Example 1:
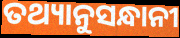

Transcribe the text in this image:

ତଥ୍ୟାନୁସନ୍ଧାନୀ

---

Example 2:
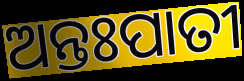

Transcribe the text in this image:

ଅନ୍ତଃପାତୀ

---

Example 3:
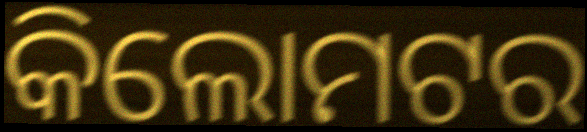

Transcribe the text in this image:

କିଲୋମଟର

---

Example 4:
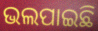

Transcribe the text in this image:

ଭଲପାଇଛି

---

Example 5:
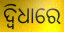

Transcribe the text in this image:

ଦ୍ଵିଧାରେ